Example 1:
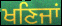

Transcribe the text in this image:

ਖਣਿਜਾਂ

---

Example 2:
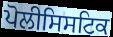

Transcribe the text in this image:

ਪੋਲੀਸਿਸਟਿਕ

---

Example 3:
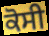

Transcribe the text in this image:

ਕੋਸੀ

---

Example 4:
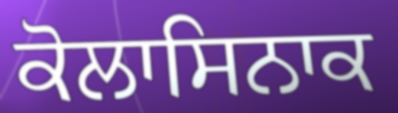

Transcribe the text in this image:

ਕੋਲਾਸਿਨਾਕ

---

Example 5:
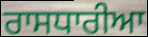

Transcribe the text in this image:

ਰਾਸਧਾਰੀਆ